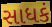
સાધકં